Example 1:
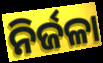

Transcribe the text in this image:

ନିର୍ଜଳା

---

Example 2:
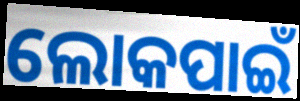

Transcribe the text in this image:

ଲୋକପାଇଁ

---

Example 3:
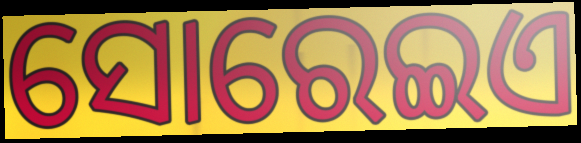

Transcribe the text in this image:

ସୋରେଇଏ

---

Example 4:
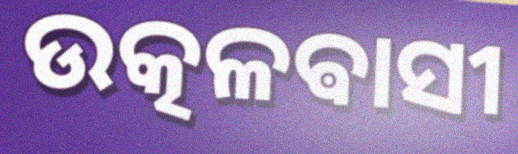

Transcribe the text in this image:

ଉତ୍କଳଵାସୀ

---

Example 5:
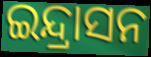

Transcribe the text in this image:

ଇନ୍ଦ୍ରାସନ